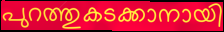
പുറത്തുകടക്കാനായി